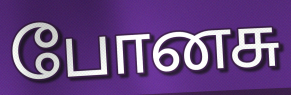
போனசு